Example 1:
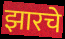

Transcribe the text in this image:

झारचे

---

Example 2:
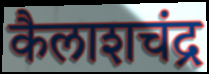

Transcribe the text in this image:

कैलाशचंद्र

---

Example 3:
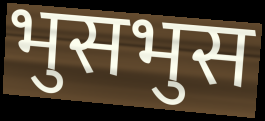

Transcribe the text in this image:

भुसभुस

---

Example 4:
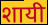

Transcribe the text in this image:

शायी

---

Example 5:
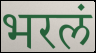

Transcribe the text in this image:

भरलं